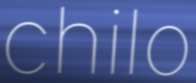
chilo